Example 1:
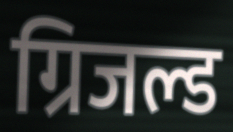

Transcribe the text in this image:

ग्रिजल्ड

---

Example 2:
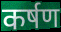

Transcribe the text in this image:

कर्षण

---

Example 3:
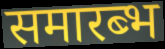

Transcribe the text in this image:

समारब्भ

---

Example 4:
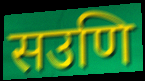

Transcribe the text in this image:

सउणि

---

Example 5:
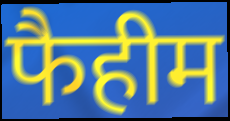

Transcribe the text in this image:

फैहीम